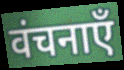
वंचनाएँ